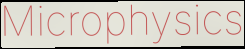
Microphysics